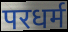
परधर्म